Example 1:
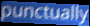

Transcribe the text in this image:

punctually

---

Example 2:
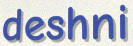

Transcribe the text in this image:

deshni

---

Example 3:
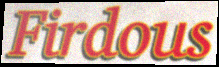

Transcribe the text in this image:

Firdous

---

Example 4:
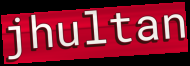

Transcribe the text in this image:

jhultan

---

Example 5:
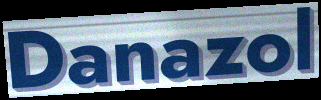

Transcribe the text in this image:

Danazol